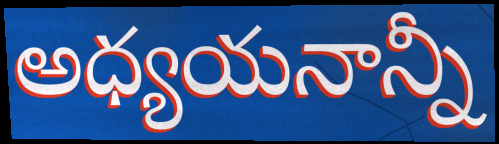
అధ్యయనాన్నీ